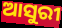
ଆସୁରୀ